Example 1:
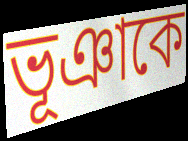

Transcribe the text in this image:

ভূঞাকে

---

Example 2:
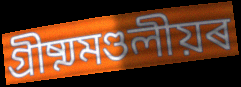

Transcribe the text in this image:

গ্ৰীষ্মমণ্ডলীয়ৰ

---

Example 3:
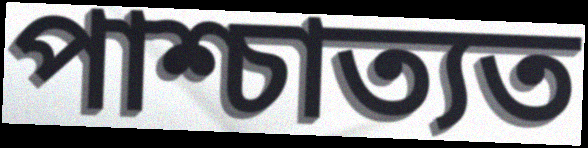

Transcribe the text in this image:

পাশ্চাত্যত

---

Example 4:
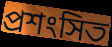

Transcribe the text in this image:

প্ৰশংসিত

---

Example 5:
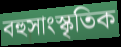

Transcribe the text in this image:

বহুসাংস্কৃতিক